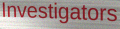
Investigators